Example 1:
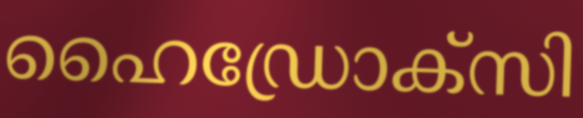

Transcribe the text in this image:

ഹൈഡ്രോക്സി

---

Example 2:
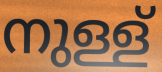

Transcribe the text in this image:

നുള്ള്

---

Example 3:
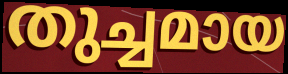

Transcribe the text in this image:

തുച്ചമായ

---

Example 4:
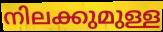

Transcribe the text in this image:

നിലക്കുമുള്ള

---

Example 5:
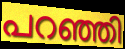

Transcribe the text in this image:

പറഞ്ഞി